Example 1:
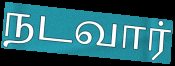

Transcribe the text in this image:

நடவார்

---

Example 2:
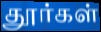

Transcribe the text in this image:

தூர்கள்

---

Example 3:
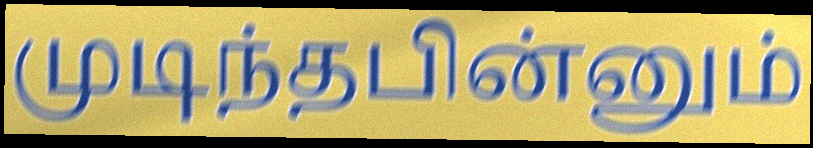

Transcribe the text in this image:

முடிந்தபின்னும்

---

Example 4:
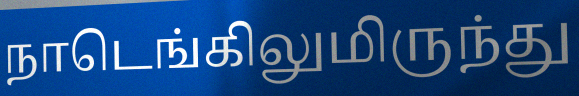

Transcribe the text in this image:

நாடெங்கிலுமிருந்து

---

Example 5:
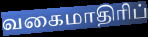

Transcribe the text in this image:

வகைமாதிரிப்